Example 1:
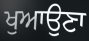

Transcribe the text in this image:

ਖੁਆਉਣਾ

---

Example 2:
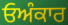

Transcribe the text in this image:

ਓਅੰਕਾਰ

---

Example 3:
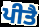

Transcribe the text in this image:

ਪੀਤੈ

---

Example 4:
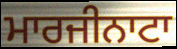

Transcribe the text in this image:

ਮਾਰਜੀਨਾਟਾ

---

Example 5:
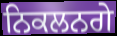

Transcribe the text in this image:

ਨਿਕਲਨਗੇ